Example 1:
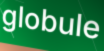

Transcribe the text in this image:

globule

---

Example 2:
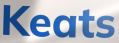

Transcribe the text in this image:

Keats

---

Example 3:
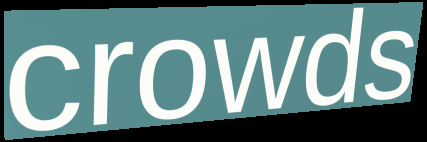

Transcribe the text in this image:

crowds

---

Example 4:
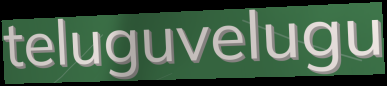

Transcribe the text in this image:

teluguvelugu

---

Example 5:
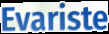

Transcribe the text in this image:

Evariste